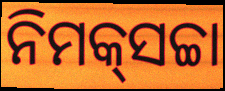
ନିମକ୍‍ସଚ୍ଚା